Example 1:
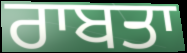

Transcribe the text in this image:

ਰਾਬਤਾ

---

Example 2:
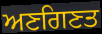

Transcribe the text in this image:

ਅਣਗਿਣਤ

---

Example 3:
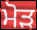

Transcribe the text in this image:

ਮੋੜ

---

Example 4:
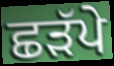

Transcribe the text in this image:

ਛੜੱਪੇ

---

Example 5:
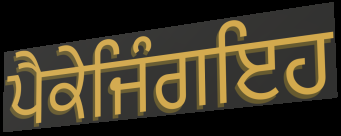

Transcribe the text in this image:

ਪੈਕੇਜਿੰਗਇਹ